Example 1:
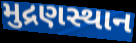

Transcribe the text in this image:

મુદ્રણસ્થાન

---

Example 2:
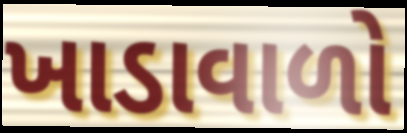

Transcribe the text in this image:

ખાડાવાળો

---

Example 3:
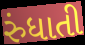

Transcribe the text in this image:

રુંધાતી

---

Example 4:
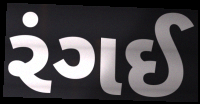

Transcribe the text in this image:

રંગઈ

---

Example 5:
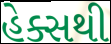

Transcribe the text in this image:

હેક્સથી